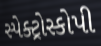
સ્પેક્ટ્રોસ્કોપી